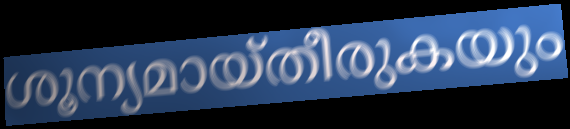
ശൂന്യമായ്തീരുകയും